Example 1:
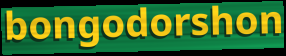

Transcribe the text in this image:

bongodorshon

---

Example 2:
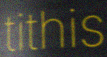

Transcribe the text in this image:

tithis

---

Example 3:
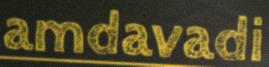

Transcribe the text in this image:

amdavadi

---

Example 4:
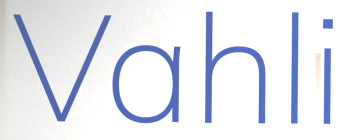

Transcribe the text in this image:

Vahli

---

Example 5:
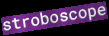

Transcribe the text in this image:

stroboscope